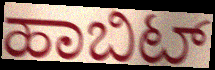
ಹಾಬಿಟ್